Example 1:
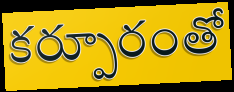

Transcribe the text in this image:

కర్పూరంతో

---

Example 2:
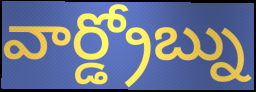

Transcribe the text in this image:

వార్డ్రోబ్ను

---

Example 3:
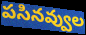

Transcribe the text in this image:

పసినవ్వుల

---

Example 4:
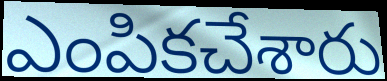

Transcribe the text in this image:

ఎంపికచేశారు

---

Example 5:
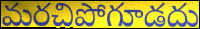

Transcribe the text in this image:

మరచిపోగూడదు